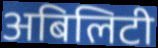
अबिलिटी